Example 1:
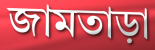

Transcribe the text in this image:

জামতাড়া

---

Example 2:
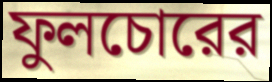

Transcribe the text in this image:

ফুলচোরের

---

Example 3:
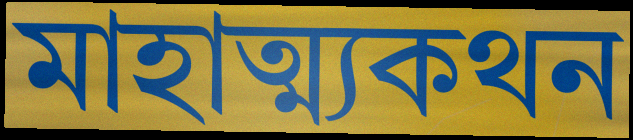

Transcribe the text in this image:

মাহাত্ম্যকথন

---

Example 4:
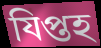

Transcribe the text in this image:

যিপ্তহ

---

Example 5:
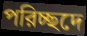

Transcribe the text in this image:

পরিচ্ছদে